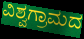
ವಿಶ್ವಗ್ರಾಮದ